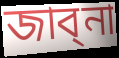
জাব্‌না